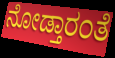
ನೋಡ್ತಾರಂತೆ